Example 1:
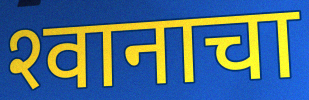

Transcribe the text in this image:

श्वानाचा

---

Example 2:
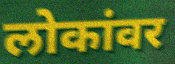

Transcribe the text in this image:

लोकांवर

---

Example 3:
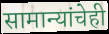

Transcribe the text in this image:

सामान्यांचेही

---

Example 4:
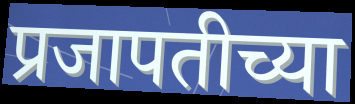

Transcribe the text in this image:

प्रजापतीच्या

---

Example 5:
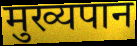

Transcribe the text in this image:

मुख्यपान